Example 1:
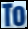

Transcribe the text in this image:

To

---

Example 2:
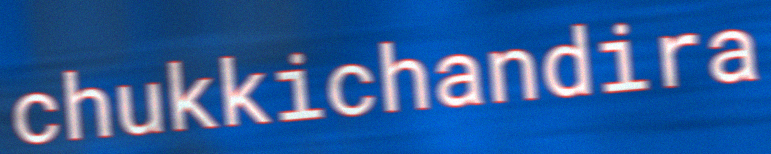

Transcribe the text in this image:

chukkichandira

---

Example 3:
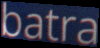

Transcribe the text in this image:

batra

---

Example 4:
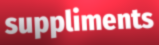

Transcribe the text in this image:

suppliments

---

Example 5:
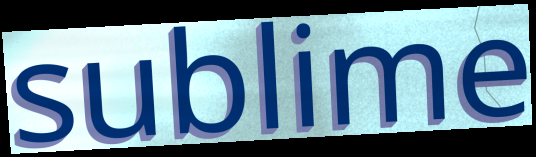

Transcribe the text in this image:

sublime